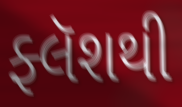
ફ્લૅશથી